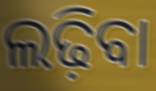
ଲଢ଼ିବା